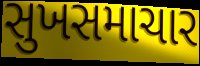
સુખસમાચાર